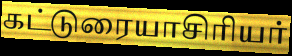
கட்டுரையாசிரியர்